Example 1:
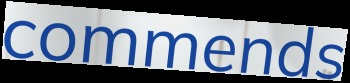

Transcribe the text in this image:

commends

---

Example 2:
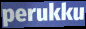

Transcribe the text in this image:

perukku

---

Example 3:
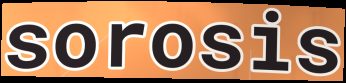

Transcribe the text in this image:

sorosis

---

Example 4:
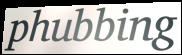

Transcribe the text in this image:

phubbing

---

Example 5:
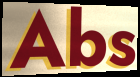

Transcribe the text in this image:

Abs